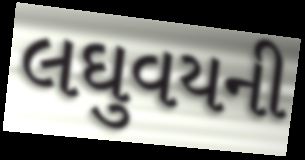
લઘુવયની